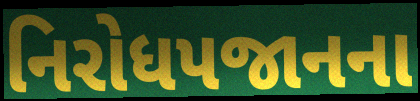
નિરોધપજાનના